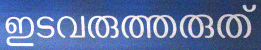
ഇടവരുത്തരുത്